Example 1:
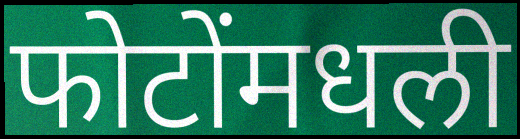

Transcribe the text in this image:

फोटोंमधली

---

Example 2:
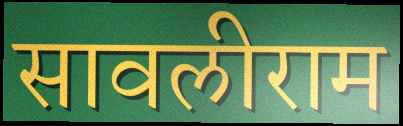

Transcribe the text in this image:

सावलीराम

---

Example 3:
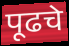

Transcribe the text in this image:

पूढचे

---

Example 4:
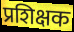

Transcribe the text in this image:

प्रशिक्षक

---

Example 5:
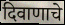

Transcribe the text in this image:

दिवाणाचे